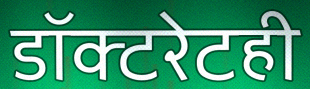
डॉक्‍टरेटही